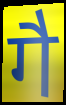
गै